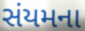
સંયમના